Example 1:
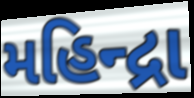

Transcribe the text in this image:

મહિન્દ્રા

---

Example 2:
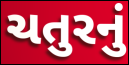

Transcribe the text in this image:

ચતુરનું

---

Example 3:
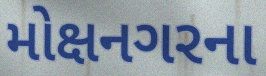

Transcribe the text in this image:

મોક્ષનગરના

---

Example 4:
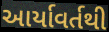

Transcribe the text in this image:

આર્યાવર્તથી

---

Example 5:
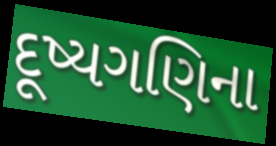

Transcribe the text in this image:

દૂષ્યગણિના